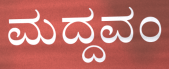
ಮದ್ದವಂ